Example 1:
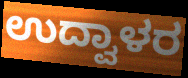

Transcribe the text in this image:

ಉದ್ವಾಳರ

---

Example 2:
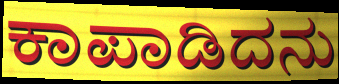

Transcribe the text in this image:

ಕಾಪಾಡಿದನು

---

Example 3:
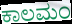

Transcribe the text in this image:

ಕಾಲಮಂ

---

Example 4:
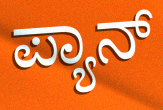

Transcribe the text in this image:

ಪ್ಯಾನ್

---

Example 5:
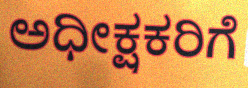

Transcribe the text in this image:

ಅಧೀಕ್ಷಕರಿಗೆ